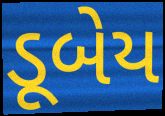
ડૂબેય